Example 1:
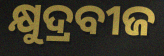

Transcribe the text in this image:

କ୍ଷୁଦ୍ରବୀଜ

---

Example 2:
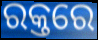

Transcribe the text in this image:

ରକ୍ତରେ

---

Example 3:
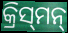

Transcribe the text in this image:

କ୍ରିସ୍‍ମନ୍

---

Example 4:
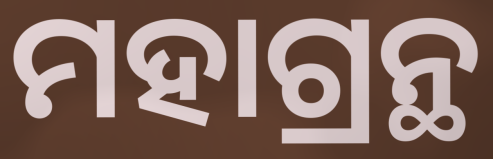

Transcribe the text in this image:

ମହାଗ୍ରନ୍ଥ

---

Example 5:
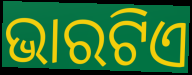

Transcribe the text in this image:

ଭାରଟିଏ